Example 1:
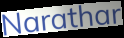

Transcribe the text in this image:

Narathar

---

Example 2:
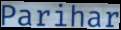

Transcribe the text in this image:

Parihar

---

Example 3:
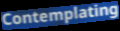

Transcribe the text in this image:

Contemplating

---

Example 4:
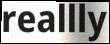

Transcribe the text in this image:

reallly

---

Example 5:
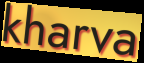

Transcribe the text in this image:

kharva